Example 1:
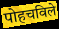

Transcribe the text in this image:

पोहचविले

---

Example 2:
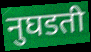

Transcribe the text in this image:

नुघडती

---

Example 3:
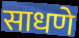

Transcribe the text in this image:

साधणे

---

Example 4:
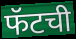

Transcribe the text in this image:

फॅटची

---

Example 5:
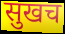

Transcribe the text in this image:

सुखच